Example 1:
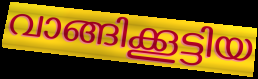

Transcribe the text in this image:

വാങ്ങിക്കൂട്ടിയ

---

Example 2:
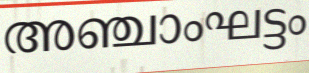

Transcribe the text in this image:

അഞ്ചാംഘട്ടം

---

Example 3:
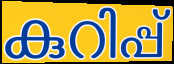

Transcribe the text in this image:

കുറിപ്പ്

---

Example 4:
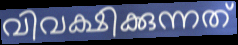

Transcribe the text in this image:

വിവക്ഷിക്കുന്നത്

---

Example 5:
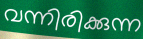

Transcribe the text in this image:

വന്നിരിക്കുന്ന